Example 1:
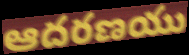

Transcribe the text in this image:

ఆదరణయు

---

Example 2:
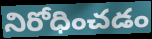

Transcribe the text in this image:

నిరోధించడం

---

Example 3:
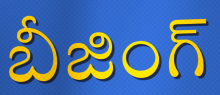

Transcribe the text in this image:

బీజింగ్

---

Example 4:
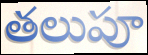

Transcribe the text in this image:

తలుపూ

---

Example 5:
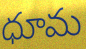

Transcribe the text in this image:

ధూమ